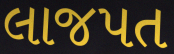
લાજપત